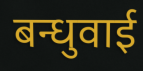
बन्धुवाई